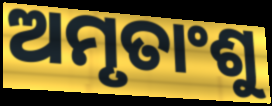
ଅମୃତାଂଶୁ